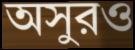
অসুরও